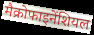
मैक्रोफाइनेंशियल